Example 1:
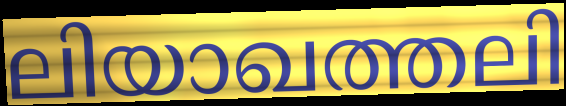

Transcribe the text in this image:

ലിയാഖത്തലി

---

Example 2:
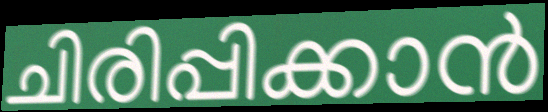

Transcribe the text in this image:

ചിരിപ്പിക്കാൻ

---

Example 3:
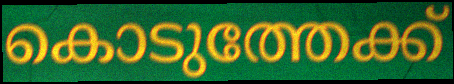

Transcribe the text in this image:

കൊടുത്തേക്ക്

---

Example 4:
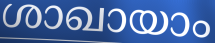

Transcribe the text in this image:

ശാഖായാം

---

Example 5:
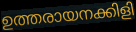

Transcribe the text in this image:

ഉത്തരായനക്കിളി